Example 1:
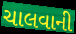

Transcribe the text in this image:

ચાલવાની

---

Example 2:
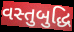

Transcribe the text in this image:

વસ્તુબુદ્ધિ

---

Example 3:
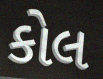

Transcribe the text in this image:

કોલ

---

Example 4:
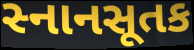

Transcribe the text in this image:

સ્નાનસૂતક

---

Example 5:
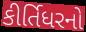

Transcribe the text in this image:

કીર્તિધરનો